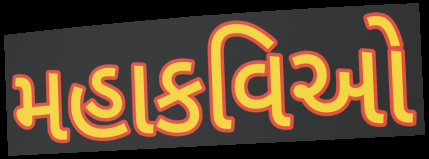
મહાકવિઓ